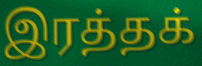
இரத்தக்